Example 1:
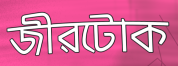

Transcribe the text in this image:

জীৱটোক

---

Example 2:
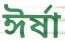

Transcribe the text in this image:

ঈৰ্ষা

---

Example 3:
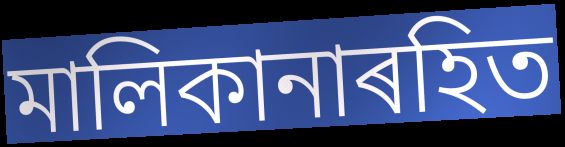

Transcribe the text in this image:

মালিকানাৰহিত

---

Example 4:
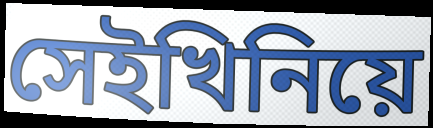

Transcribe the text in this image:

সেইখিনিয়ে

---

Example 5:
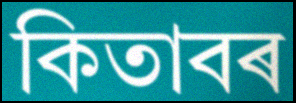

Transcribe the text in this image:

কিতাবৰ